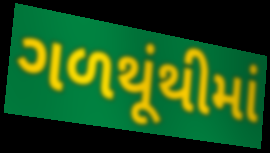
ગળથૂંથીમાં